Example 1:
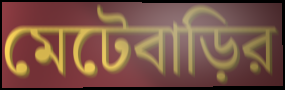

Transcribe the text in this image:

মেটেবাড়ির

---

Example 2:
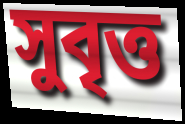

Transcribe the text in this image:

সুবৃত্ত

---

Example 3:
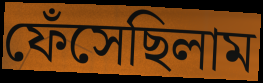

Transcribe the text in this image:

ফেঁসেছিলাম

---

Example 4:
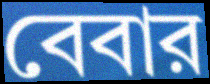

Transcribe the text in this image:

বেবার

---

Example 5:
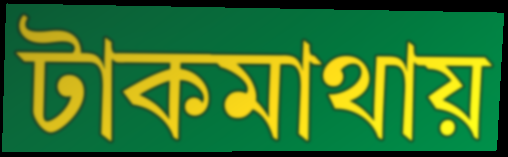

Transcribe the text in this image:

টাকমাথায়